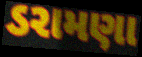
ડરામણા